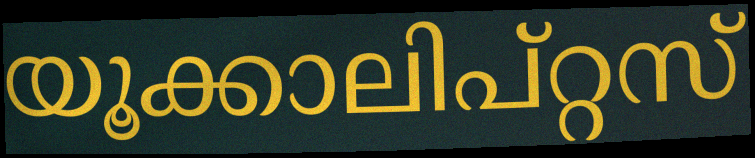
യൂക്കാലിപ്റ്റസ്